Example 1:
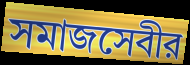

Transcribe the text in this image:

সমাজসেবীর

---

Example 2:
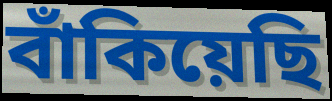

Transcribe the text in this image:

বাঁকিয়েছি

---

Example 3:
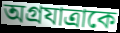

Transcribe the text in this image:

অগ্রযাত্রাকে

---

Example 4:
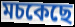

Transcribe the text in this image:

মচকেছে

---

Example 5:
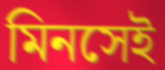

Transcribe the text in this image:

মিনসেই